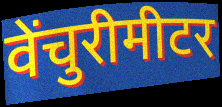
वेंचुरीमीटर